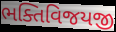
ભક્તિવિજયજી